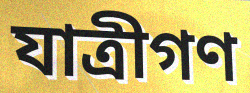
যাত্রীগণ